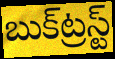
బుక్‌ట్రస్ట్